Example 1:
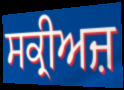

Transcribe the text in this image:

ਸਕ੍ਰੀਅਜ਼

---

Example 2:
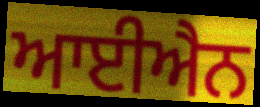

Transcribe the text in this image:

ਆਈਐਨ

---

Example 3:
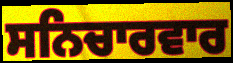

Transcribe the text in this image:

ਸਨਿਚਾਰਵਾਰ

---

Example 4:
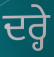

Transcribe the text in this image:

ਦਰ੍ਹੇ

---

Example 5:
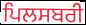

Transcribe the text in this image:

ਪਿਲਸਬਰੀ